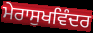
ਮੇਰਾਸੁਖਵਿੰਦਰ